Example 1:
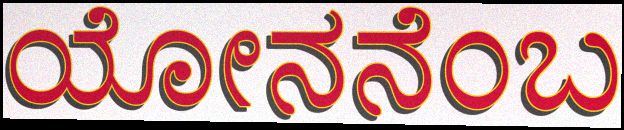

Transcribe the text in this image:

ಯೋನನೆಂಬ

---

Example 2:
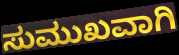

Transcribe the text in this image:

ಸುಮುಖವಾಗಿ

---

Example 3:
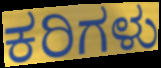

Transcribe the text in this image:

ಕರಿಗಳು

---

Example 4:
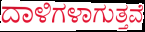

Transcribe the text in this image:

ದಾಳಿಗಳಾಗುತ್ತವೆ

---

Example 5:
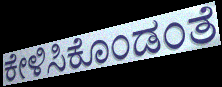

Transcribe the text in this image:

ಕೇಳಿಸಿಕೊಂಡಂತೆ